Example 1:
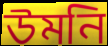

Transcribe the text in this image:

উমনি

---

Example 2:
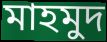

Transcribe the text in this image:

মাহমুদ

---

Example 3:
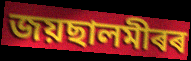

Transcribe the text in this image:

জয়ছালমীৰৰ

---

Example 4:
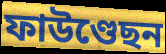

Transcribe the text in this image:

ফাউণ্ডেছন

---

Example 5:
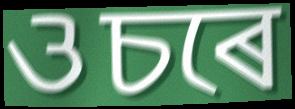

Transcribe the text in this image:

ওচৰে